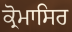
ਕ੍ਰੋਮਾਸਿਰ